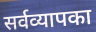
सर्वव्यापका